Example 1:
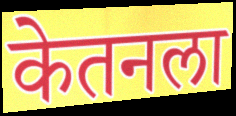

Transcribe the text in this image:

केतनला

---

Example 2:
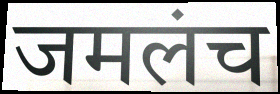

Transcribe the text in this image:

जमलंच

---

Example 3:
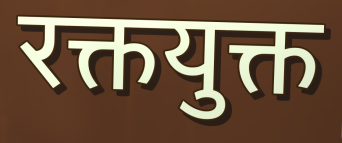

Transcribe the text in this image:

रक्तयुक्त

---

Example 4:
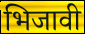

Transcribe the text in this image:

भिजावी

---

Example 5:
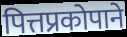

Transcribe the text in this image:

पित्तप्रकोपाने